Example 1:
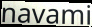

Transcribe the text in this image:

navami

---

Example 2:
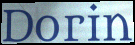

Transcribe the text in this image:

Dorin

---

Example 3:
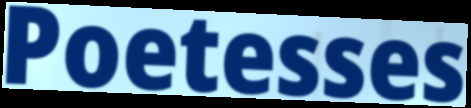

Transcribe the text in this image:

Poetesses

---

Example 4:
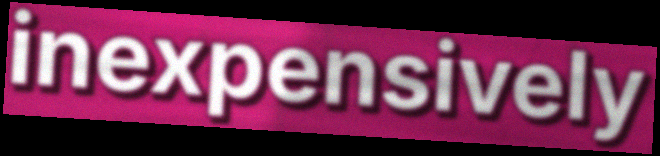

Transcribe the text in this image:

inexpensively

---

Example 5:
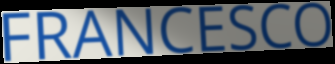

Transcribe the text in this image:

FRANCESCO